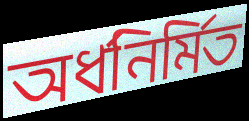
অর্ধনির্মিত